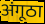
अंगूठा